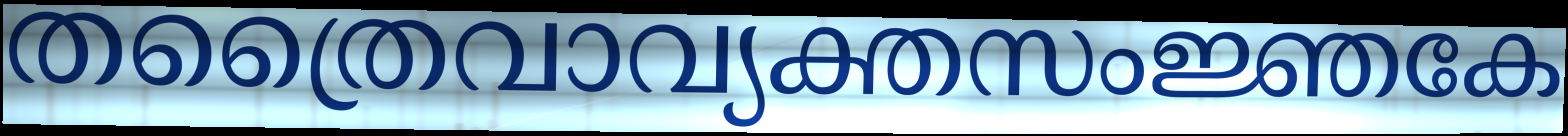
തത്രൈവാവ്യക്തസംജ്ഞകേ